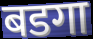
बडगा